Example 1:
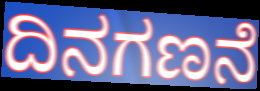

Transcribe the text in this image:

ದಿನಗಣನೆ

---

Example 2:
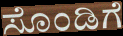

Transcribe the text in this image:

ಸೊಂಡಿಗೆ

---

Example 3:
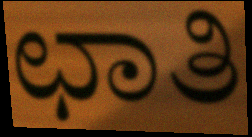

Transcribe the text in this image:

ಛಾತಿ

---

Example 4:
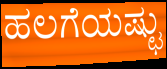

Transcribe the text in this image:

ಹಲಗೆಯಷ್ಟು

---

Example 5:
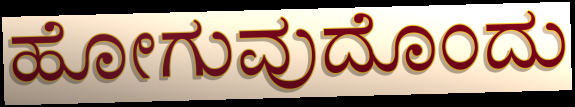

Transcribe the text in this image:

ಹೋಗುವುದೊಂದು